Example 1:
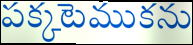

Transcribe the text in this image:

పక్కటెముకను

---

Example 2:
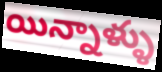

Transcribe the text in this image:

యిన్నాళ్ళు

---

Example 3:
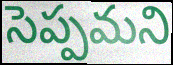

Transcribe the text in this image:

సెప్పమని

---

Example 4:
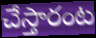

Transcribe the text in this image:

చేస్తారంట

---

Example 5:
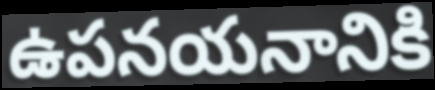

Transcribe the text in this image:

ఉపనయనానికి